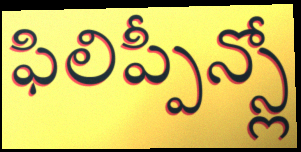
ఫిలిప్పీన్స్లో